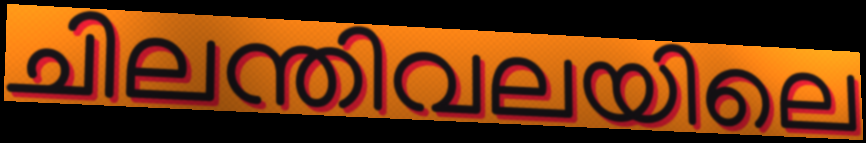
ചിലന്തിവലയിലെ